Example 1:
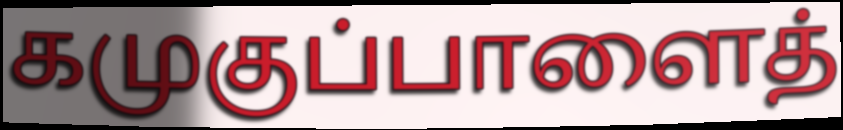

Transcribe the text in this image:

கமுகுப்பாளைத்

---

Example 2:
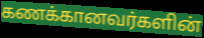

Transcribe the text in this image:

கணக்கானவர்களின்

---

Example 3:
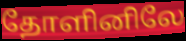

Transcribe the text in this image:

தோளினிலே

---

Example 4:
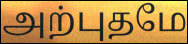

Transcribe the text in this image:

அற்புதமே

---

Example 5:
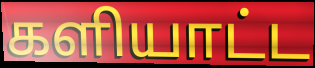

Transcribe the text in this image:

களியாட்ட